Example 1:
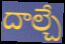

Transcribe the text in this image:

దాల్చే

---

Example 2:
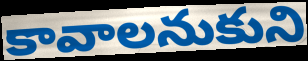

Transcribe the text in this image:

కావాలనుకుని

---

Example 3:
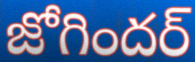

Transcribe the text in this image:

జోగిందర్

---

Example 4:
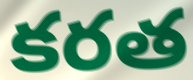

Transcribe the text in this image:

కరత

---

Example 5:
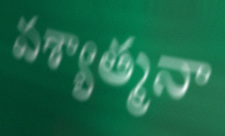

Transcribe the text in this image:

వశ్యాత్మనా